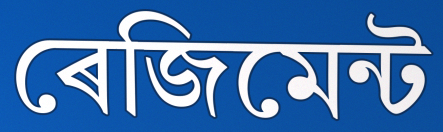
ৰেজিমেন্ট